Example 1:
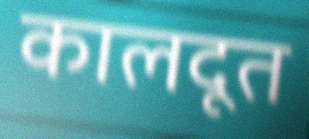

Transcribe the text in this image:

कालदूत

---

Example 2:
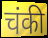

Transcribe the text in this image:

चंकी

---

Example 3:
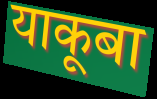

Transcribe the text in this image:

याकूबा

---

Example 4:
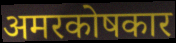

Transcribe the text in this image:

अमरकोषकार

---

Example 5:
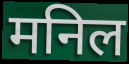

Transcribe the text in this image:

मनिल